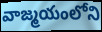
వాజ్మయంలోని